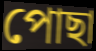
পোছা